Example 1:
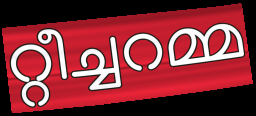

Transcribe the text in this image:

റ്റീച്ചറമ്മ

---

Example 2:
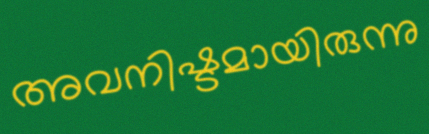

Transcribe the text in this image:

അവനിഷ്ടമായിരുന്നു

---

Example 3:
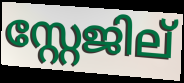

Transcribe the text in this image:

സ്റ്റേജില്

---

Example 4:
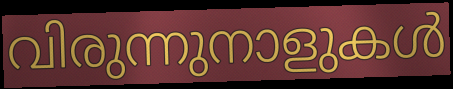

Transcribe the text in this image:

വിരുന്നുനാളുകൾ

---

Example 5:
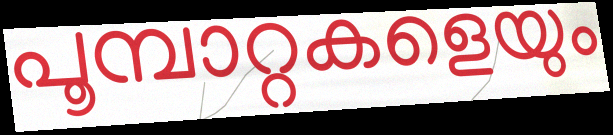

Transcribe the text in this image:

പൂമ്പാറ്റകളെയും